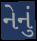
નેનું